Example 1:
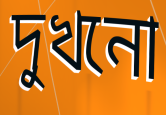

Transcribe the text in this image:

দুখনো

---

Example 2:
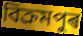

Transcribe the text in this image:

বিক্ৰমপুৰ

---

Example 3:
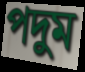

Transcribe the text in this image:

পদুম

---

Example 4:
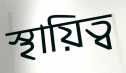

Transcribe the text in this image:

স্থায়িত্ব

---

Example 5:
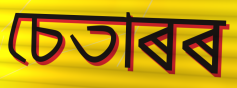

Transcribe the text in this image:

চেতাৰৰ